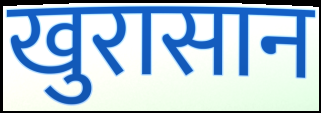
खुरासान